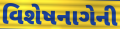
વિશેષનાગેની